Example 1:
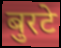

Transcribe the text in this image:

बुरटे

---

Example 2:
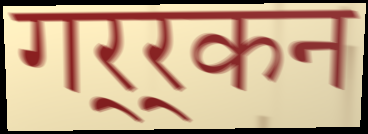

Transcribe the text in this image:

गर्र्कन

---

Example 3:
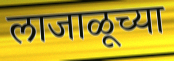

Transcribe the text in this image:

लाजाळूच्या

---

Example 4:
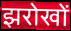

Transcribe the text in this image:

झरोखों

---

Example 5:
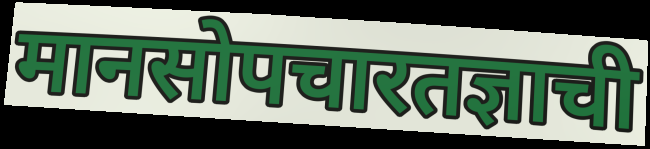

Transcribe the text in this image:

मानसोपचारतज्ञाची